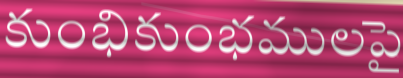
కుంభికుంభములపై